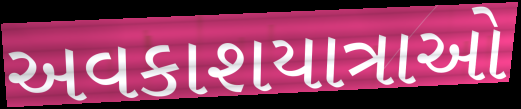
અવકાશયાત્રાઓ